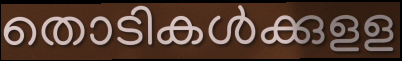
തൊടികൾക്കുളള